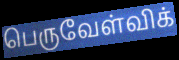
பெருவேள்விக்